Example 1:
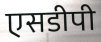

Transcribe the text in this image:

एसडीपी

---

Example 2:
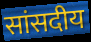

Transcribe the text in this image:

सांसदीय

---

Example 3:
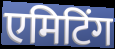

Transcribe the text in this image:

एमिटिंग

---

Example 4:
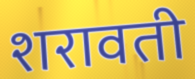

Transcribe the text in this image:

शरावती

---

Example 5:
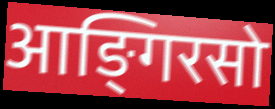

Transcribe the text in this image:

आङ्गिरसो